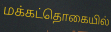
மக்கட்தொகையில்